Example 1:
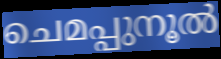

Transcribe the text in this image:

ചെമപ്പുനൂൽ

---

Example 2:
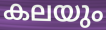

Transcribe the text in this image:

കലയും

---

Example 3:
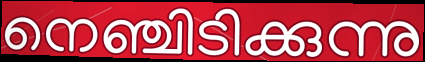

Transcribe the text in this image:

നെഞ്ചിടിക്കുന്നു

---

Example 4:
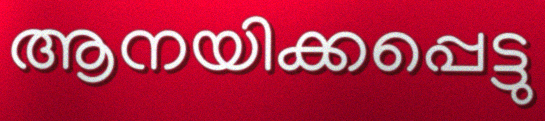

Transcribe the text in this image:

ആനയിക്കപ്പെട്ടു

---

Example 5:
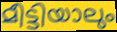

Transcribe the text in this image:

മീട്ടിയാലും